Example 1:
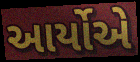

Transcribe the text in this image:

આર્યોએ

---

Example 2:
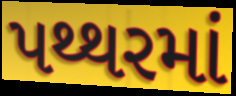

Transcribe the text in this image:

પથ્થરમાં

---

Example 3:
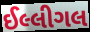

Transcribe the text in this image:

ઈલ્લીગલ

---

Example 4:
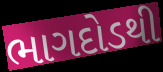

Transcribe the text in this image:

ભાગદોડથી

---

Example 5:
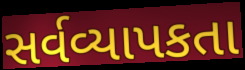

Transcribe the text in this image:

સર્વવ્યાપકતા